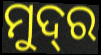
ମୁଦ୍‌ର